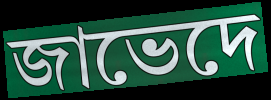
জাভেদে